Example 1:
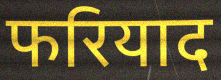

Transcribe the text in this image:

फरियाद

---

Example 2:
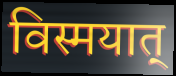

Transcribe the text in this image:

विस्मयात्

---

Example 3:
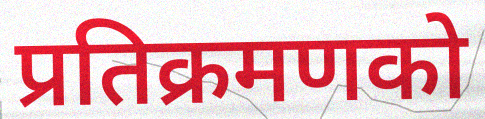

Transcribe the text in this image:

प्रतिक्रमणको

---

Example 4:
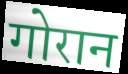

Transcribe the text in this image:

गोरान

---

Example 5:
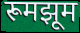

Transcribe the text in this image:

रूमझूम